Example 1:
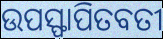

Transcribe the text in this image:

ଉପସ୍ଫାପିତବତୀ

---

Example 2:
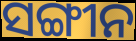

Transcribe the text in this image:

ସଙ୍ଗୀନ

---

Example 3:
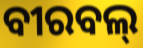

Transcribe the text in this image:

ବୀରବଲ୍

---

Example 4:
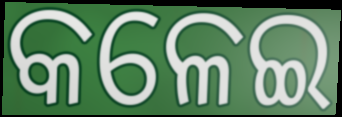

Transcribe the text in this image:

କଳେଇ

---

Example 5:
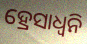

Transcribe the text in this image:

ହ୍ରେସାଧ୍ୱନି